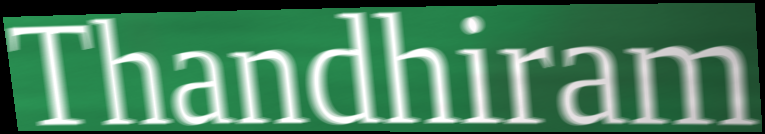
Thandhiram